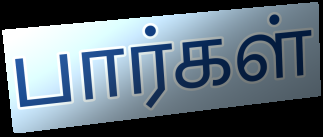
பார்கள்